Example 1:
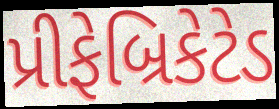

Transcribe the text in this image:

પ્રીફેબ્રિકેટેડ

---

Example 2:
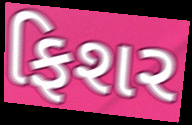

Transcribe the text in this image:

ફિશર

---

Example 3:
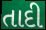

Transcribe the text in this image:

તાદી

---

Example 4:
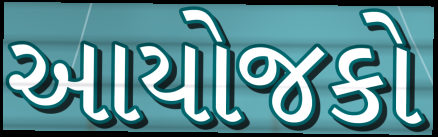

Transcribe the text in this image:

આયોજકો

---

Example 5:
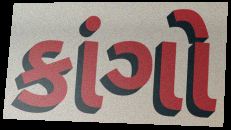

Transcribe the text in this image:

કાંગો